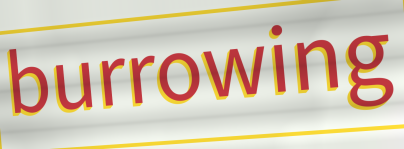
burrowing